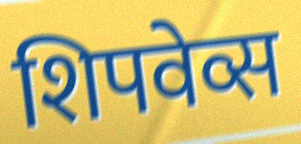
शिपवेव्स